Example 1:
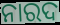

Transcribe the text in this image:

ନାରଦ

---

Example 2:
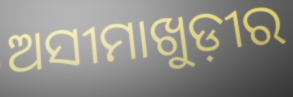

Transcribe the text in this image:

ଅସୀମାଖୁଡ଼ୀର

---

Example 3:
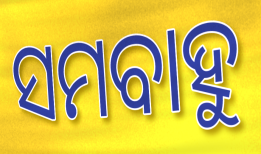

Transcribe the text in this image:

ସମବାହୁ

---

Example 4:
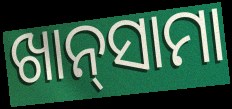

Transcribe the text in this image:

ଖାନ୍‌ସାମା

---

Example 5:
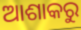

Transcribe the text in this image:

ଆଶାକରୁ